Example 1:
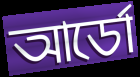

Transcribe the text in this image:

আর্ডো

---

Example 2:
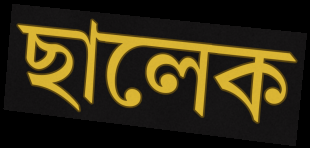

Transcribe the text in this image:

ছালেক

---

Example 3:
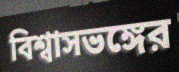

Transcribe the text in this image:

বিশ্বাসভঙ্গের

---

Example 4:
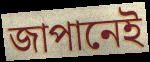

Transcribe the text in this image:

জাপানেই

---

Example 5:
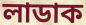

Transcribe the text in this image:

লাডাক